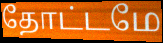
தோட்டமே